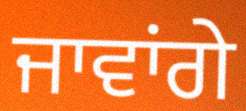
ਜਾਵਾਂਗੇ